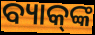
ବ୍ୟାକ୍‍ଙ୍କ